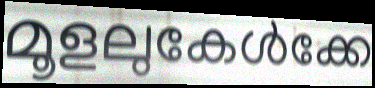
മൂളലുകേൾക്കേ